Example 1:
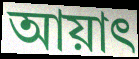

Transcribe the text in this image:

আয়াৎ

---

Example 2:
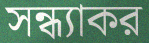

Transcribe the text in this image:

সন্ধ্যাকর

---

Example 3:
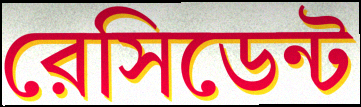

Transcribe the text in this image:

রেসিডেন্ট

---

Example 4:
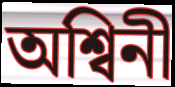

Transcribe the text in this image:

অশ্বিনী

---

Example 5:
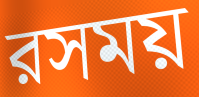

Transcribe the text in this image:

রসময়